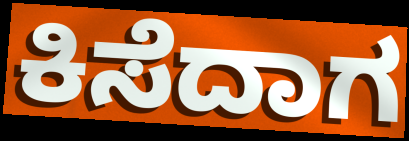
ಕಿಸೆದಾಗ